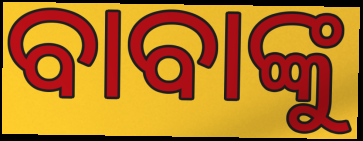
ବାବାଙ୍କୁ